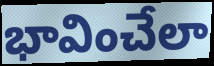
భావించేలా